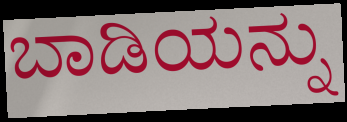
ಬಾಡಿಯನ್ನು